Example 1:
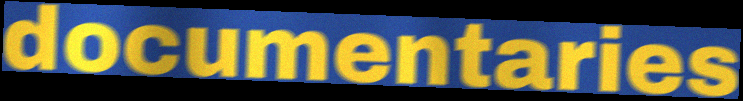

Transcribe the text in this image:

documentaries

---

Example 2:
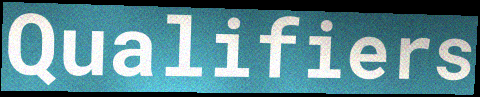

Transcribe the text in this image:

Qualifiers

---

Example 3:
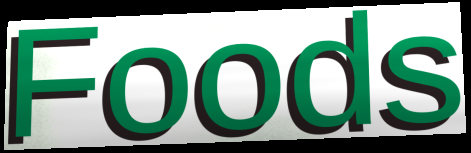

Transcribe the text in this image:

Foods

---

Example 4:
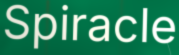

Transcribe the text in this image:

Spiracle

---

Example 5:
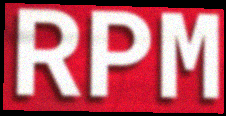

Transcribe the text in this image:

RPM